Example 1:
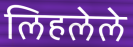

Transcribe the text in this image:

लिहलेले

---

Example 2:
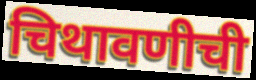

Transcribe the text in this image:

चिथावणीची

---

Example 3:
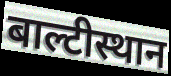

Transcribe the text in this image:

बाल्टीस्थान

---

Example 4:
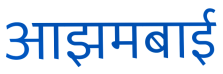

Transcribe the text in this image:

आझमबाई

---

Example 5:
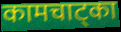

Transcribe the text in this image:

कामचाट्का